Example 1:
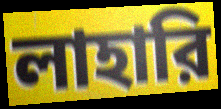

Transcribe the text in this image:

লাহারি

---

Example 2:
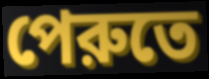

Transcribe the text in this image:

পেরুতে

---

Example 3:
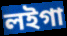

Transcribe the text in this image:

লইগা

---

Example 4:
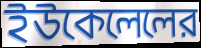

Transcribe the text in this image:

ইউকেলেলের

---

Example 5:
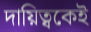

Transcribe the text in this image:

দায়িত্বকেই